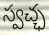
స్వచ్ఛ